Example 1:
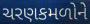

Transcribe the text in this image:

ચરણકમળોને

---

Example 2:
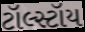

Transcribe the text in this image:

ટૉલ્સ્ટૉય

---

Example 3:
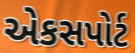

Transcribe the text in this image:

એકસપોર્ટ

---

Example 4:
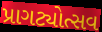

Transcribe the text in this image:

પ્રાગટ્યોત્સવ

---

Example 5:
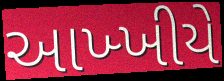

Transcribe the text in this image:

આખ્ખીયે